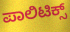
ಪಾಲಿಟಿಕ್ಸ್